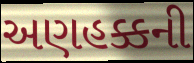
અણહક્કની